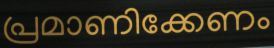
പ്രമാണിക്കേണം